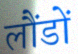
लौंडों